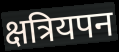
क्षत्रियपन